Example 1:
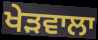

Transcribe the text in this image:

ਖੇੜਵਾਲਾ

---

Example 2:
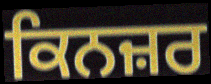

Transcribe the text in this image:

ਕਿਨਜ਼ਰ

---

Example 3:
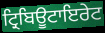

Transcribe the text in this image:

ਟ੍ਰਿਬਿਊਟਾਇਰੇਟ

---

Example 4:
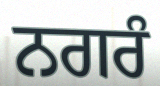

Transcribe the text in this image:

ਨਗਰੰ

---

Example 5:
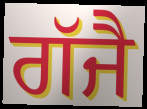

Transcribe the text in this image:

ਗੱਜੈ